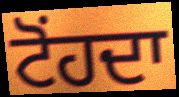
ਟੋਂਹਦਾ